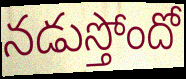
నడుస్తోందో